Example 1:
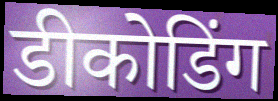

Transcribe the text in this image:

डीकोडिंग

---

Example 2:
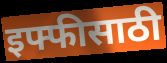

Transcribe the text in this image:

इफ्फीसाठी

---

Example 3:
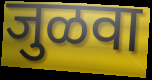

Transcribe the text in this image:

जुळवा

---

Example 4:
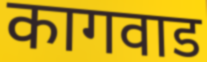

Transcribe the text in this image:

कागवाड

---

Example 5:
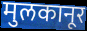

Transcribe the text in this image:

मुलकानूर